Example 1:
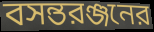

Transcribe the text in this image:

বসন্তরঞ্জনের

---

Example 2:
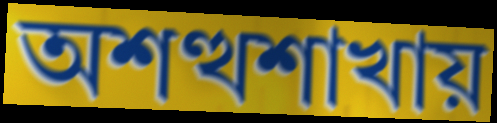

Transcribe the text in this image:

অশত্থশাখায়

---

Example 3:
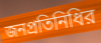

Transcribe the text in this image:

জনপ্রতিনিধির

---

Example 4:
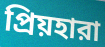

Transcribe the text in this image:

প্রিয়হারা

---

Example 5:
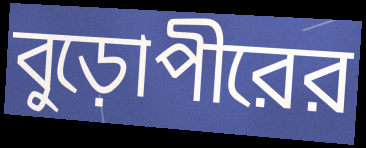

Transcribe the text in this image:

বুড়োপীরের